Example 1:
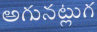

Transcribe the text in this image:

అగునట్లుగ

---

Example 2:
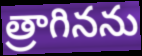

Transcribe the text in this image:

త్రాగినను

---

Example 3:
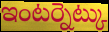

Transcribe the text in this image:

ఇంటర్నెట్కు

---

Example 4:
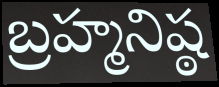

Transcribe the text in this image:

బ్రహ్మనిష్ఠ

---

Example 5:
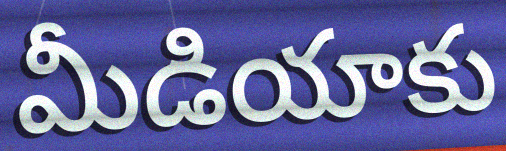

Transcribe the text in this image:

మీడియాకు